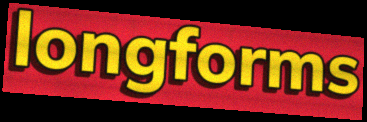
longforms